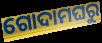
ଗୋଦାମଘରୁ